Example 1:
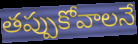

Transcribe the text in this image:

తప్పుకోవాలనే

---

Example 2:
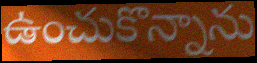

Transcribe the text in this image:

ఉంచుకొన్నాను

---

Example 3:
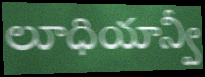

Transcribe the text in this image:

లూధియాన్వీ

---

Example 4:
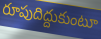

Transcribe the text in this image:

రూపుదిద్దుకుంటూ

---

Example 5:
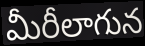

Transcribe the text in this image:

మీరీలాగున